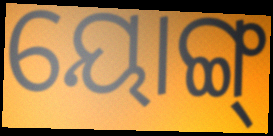
ୟୋଙ୍ଗ୍